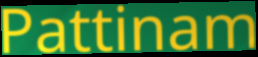
Pattinam